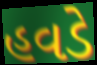
હવડે